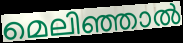
മെലിഞ്ഞാൽ